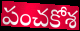
పంచకోశ